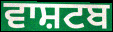
ਵਾਸ਼ਟਬ